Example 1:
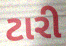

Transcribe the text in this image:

ટારી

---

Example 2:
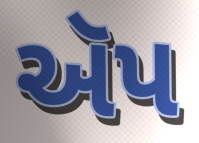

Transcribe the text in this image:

ઍપ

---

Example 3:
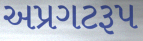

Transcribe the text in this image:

અપ્રગટરૂપ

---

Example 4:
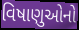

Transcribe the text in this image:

વિષાણુઓનો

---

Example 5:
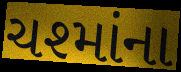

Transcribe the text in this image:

ચશ્માંના